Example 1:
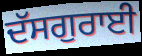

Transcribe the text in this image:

ਦੱਸਗੁਰਾਈ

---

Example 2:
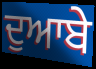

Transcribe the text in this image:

ਦੁਆਬੇ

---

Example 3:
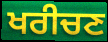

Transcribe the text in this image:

ਖਰੀਚਣ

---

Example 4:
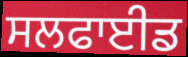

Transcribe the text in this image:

ਸਲਫਾਈਡ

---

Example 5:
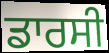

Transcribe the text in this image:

ਡਾਰਸੀ